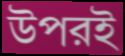
উপরই